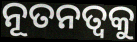
ନୂତନତ୍ବକୁ